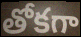
తోకగా